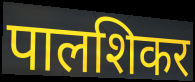
पालशिकर